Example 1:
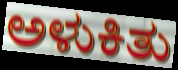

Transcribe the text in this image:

ಅಳುಕಿತು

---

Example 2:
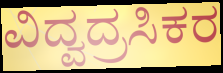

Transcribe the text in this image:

ವಿದ್ವದ್ರಸಿಕರ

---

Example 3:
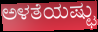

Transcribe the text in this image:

ಅಳತೆಯಷ್ಟು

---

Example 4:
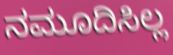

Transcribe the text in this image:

ನಮೂದಿಸಿಲ್ಲ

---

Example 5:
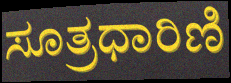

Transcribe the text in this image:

ಸೂತ್ರಧಾರಿಣಿ